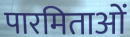
पारमिताओं